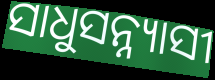
ସାଧୁସନ୍ନ୍ୟାସୀ